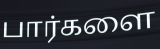
பார்களை